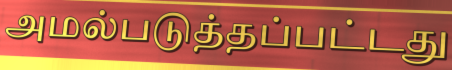
அமல்படுத்தப்பட்டது